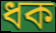
ধক